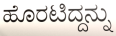
ಹೊರಟಿದ್ದನ್ನು